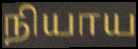
நியாய